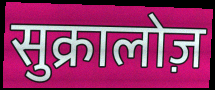
सुक्रालोज़